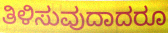
ತಿಳಿಸುವುದಾದರೂ